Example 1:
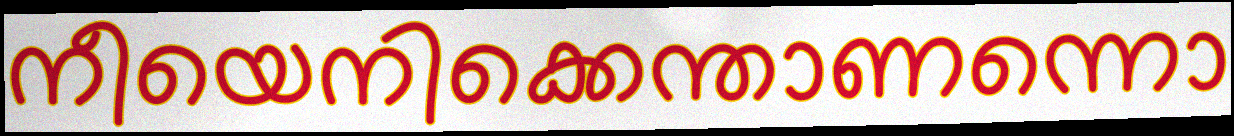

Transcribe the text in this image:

നീയെനിക്കെന്താണന്നൊ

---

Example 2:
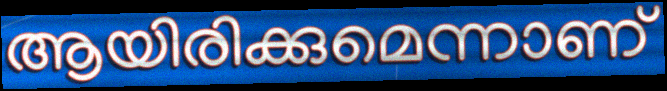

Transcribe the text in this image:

ആയിരിക്കുമെന്നാണ്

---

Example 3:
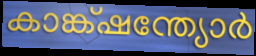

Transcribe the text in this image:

കാങ്ക്ഷന്ത്യോർ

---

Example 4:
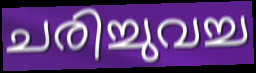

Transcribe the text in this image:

ചരിച്ചുവച്ച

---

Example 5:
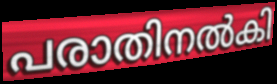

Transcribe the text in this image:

പരാതിനൽകി